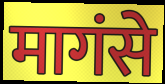
मागंसे